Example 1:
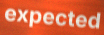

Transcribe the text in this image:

expected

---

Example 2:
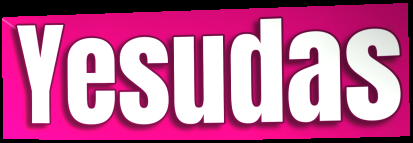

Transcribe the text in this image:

Yesudas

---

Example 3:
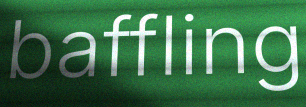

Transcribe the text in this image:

baffling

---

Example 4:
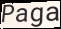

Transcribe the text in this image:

Paga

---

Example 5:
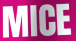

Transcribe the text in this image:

MICE